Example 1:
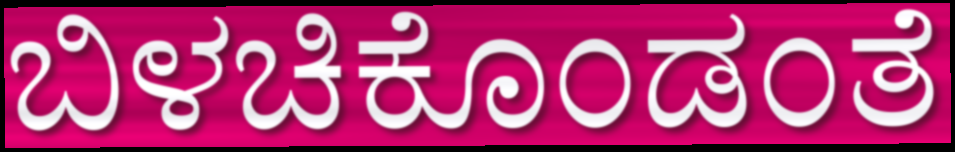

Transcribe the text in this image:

ಬಿಳಚಿಕೊಂಡಂತೆ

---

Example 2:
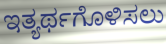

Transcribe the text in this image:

ಇತ್ಯರ್ಥಗೊಳಿಸಲು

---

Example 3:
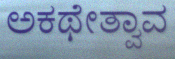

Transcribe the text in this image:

ಅಕಥೇತ್ವಾವ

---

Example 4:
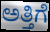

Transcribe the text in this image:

ಅತ್ತಿಗೆ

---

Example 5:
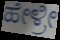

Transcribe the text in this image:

ಹೇಳ್ರೀ